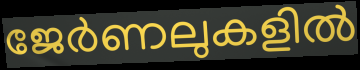
ജേർണലുകളിൽ